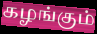
கழங்கும்